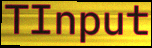
TInput